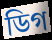
ডিগ